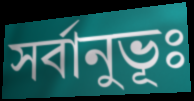
সর্বানুভূঃ